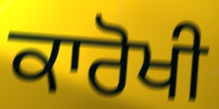
ਕਾਰੋਖੀ